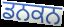
ਡਨਕਨ